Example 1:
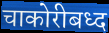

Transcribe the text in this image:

चाकोरीबध्द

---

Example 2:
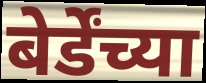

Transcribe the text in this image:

बेर्डेंच्या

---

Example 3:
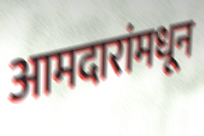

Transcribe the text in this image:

आमदारांमधून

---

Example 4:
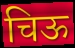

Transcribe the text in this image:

चिऊ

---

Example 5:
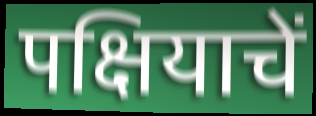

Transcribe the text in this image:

पक्षियाचें